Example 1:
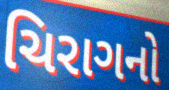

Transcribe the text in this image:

ચિરાગનો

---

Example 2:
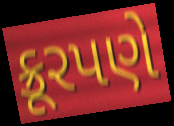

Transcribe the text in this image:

ક્રૂરપણે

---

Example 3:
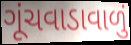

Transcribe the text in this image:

ગૂંચવાડાવાળું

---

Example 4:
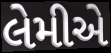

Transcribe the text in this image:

લેમીએ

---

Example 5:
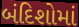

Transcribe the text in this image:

બંદિશોમાં